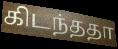
கிடந்ததா